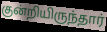
குன்றியிருந்தார்